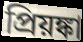
প্রিয়ঙ্কা